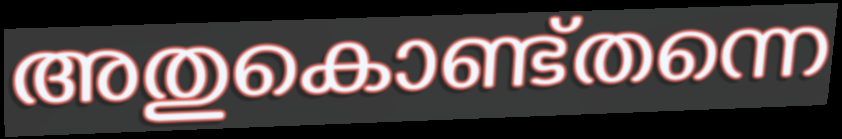
അതുകൊണ്ട്തന്നെ